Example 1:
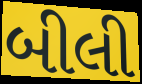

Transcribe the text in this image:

બીલી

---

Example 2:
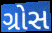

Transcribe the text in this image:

ગ્રોસ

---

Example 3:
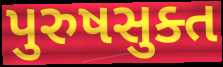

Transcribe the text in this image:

પુરુષસુક્ત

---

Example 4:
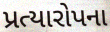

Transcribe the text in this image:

પ્રત્યારોપના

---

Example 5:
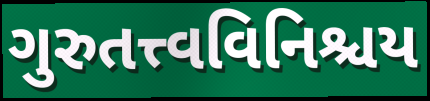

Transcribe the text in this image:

ગુરુતત્ત્વવિનિશ્ચય